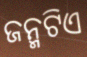
ଜନ୍ମଟିଏ